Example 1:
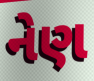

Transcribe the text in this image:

નેણ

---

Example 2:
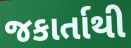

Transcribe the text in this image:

જકાર્તાથી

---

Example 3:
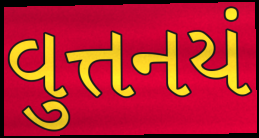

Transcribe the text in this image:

વુત્તનયં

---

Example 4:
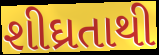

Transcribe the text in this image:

શીઘ્રતાથી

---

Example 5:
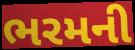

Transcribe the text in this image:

ભરમની